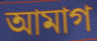
আমাগ